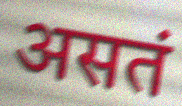
असतं